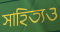
সাহিত্যও